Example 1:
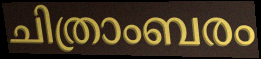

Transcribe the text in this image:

ചിത്രാംബരം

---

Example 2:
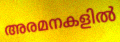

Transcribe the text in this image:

അരമനകളിൽ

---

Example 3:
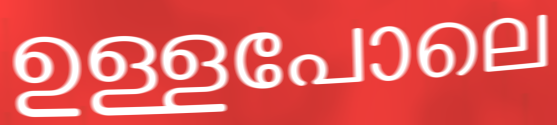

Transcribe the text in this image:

ഉള്ളപോലെ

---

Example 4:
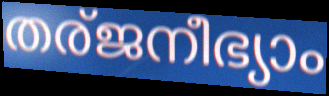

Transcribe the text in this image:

തര്ജനീഭ്യാം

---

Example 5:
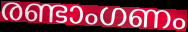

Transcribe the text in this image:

രണ്ടാംഗണം